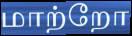
மாற்றோ